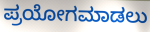
ಪ್ರಯೋಗಮಾಡಲು